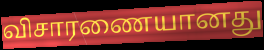
விசாரணையானது